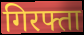
गिरफ्ता